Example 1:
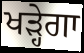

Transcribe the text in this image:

ਖੜ੍ਹੇਗਾ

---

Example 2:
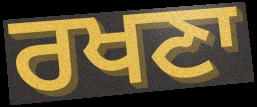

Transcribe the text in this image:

ਰਖਣਾ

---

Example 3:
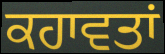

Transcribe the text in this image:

ਕਹਾਵਤਾਂ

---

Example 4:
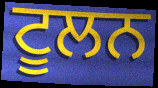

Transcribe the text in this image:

ਟੂਲਨ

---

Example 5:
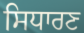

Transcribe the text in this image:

ਸਿਧਾਰਣ